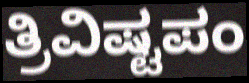
ತ್ರಿವಿಷ್ಟಪಂ